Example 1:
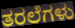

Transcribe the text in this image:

ತರಲೆಗಳು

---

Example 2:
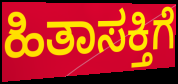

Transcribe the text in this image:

ಹಿತಾಸಕ್ತಿಗೆ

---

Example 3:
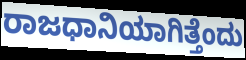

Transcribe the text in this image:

ರಾಜಧಾನಿಯಾಗಿತ್ತೆಂದು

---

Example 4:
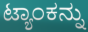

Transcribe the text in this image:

ಟ್ಯಾಂಕನ್ನು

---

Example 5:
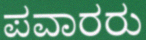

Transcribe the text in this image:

ಪವಾರರು